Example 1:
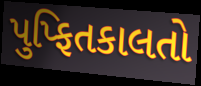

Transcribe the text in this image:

પુપ્ફિતકાલતો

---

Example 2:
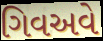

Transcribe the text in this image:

ગિવઅવે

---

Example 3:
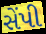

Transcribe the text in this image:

સેંપી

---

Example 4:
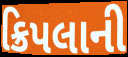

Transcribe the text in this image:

ક્રિપલાની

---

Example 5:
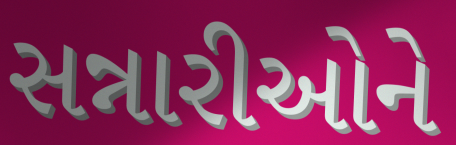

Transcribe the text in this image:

સન્નારીઓને